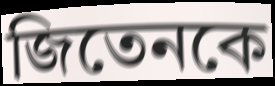
জিতেনকে